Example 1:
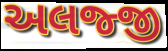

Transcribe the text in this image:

અલજ્જી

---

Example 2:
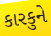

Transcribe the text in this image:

કારકુને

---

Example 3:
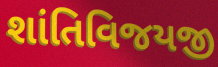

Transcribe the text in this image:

શાંતિવિજયજી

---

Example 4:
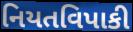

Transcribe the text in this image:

નિયતવિપાકી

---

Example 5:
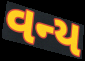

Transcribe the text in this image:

વન્ય